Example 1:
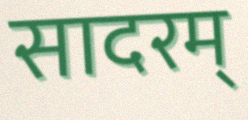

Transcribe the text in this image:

सादरम्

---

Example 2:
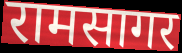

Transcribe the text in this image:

रामसागर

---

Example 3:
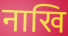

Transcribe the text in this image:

नाखि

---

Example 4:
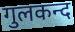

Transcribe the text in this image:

गुलकन्द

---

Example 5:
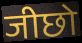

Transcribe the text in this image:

जीछो